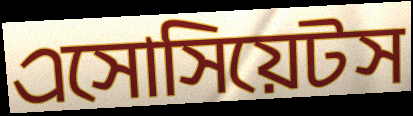
এসোসিয়েটস